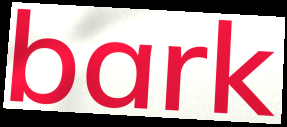
bark